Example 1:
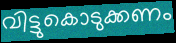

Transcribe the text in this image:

വിട്ടുകൊടുക്കണം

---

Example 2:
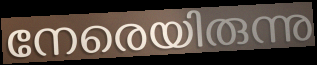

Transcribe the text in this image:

നേരെയിരുന്നു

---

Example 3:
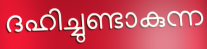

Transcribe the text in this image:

ദഹിച്ചുണ്ടാകുന്ന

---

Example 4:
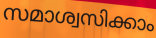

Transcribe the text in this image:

സമാശ്വസിക്കാം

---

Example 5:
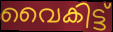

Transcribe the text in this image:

വൈകിട്ട്